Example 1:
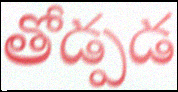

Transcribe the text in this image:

తోడ్పడ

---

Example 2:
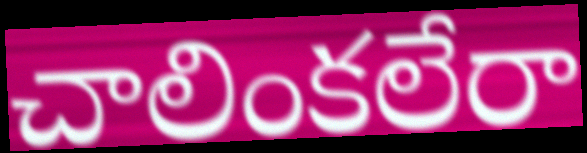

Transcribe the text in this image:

చాలింకలేరా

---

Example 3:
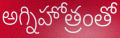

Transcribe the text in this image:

అగ్నిహోత్రంతో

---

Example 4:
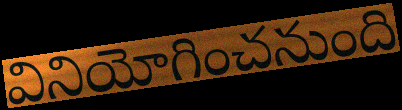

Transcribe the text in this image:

వినియోగించనుంది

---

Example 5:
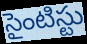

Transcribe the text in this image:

సైంటిస్టు